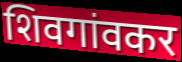
शिवगांवकर